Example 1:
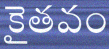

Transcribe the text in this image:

కైతవం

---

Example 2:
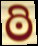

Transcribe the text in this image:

ఠి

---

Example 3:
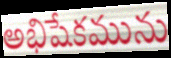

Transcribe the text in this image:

అభిషేకమును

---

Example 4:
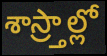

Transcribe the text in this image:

శాస్ర్తాల్లో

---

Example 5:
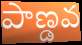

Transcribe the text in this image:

పాణ్డవ